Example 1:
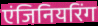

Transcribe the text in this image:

एंजिनियरिंग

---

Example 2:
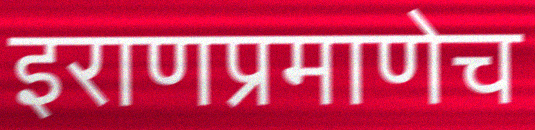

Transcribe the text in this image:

इराणप्रमाणेच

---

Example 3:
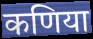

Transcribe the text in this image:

कणिया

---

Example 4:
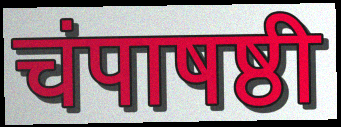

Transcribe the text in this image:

चंपाषष्ठी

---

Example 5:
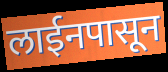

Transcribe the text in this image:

लाईनपासून